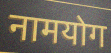
नामयोग